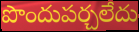
పొందుపర్చలేదు